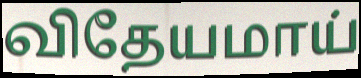
விதேயமாய்